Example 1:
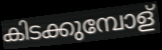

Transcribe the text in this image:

കിടക്കുമ്പോള്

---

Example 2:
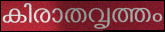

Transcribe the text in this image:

കിരാതവൃത്തം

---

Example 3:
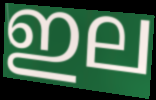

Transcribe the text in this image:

ഇല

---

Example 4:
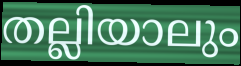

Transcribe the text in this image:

തല്ലിയാലും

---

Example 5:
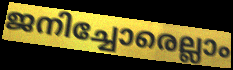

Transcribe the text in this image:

ജനിച്ചോരെല്ലാം